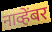
नाव्हेंबर